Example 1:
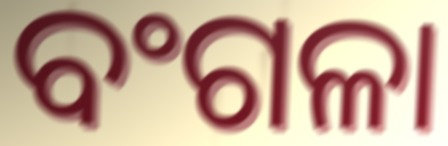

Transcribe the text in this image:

ବଂଗଳା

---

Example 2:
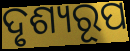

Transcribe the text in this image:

ଦୃଶ୍ୟରୂପ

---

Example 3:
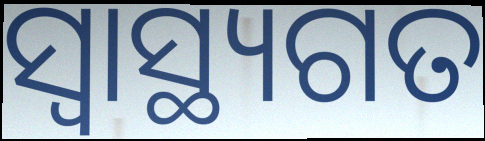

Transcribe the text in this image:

ସ୍ବାସ୍ଥ୍ୟଗତ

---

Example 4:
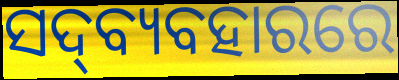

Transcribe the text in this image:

ସଦ୍‍ବ୍ୟବହାରରେ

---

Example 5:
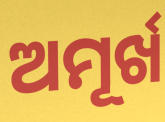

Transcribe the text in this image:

ଅମୂର୍ଖ